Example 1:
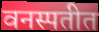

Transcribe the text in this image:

वनस्पतीत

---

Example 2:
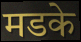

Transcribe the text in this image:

मडके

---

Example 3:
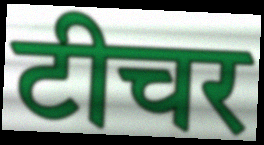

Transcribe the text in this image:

टीचर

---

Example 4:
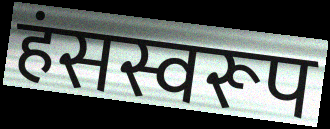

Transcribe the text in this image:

हंसस्वरूप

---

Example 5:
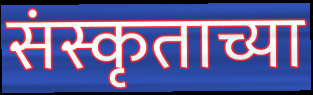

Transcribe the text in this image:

संस्कृताच्या